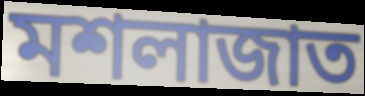
মশলাজাত